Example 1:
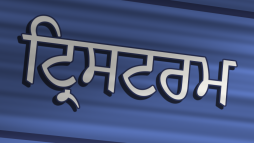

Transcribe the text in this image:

ਟ੍ਰਿਸਟਰਮ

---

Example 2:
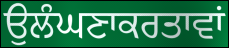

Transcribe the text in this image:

ਉਲੰਘਣਾਕਰਤਾਵਾਂ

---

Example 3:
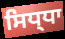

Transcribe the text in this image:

ਸਿਧ੍ਧਾ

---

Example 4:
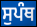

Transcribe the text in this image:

ਸੁਪੰਥ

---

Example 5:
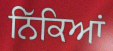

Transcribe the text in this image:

ਨਿੱਕਿਆਂ